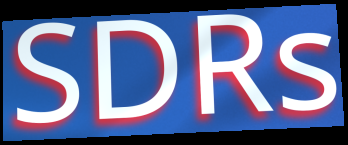
SDRs